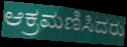
ಆಕ್ರಮಣಿಸಿದರು